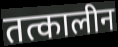
तत्कालीन